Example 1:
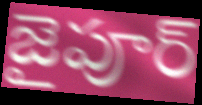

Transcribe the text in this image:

జైపూర్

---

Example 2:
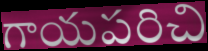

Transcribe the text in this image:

గాయపరిచి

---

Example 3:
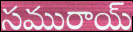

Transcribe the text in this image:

సమురాయ్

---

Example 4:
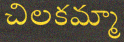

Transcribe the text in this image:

చిలకమ్మా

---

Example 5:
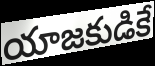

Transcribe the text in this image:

యాజకుడికే